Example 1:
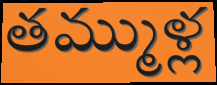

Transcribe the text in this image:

తమ్ముళ్ల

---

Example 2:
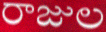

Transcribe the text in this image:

రాజుల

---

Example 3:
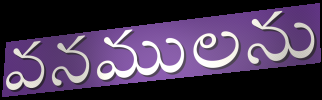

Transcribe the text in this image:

వనములను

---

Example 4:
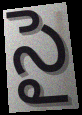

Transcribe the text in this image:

సై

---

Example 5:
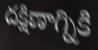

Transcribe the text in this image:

దక్షిణాగ్నికి